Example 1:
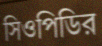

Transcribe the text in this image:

সিওপিডির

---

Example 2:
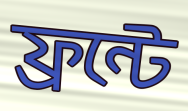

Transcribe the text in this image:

ফ্রন্টে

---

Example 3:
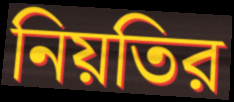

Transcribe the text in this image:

নিয়তির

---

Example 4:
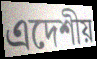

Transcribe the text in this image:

এদেশীয়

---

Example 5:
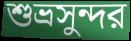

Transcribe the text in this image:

শুভ্রসুন্দর